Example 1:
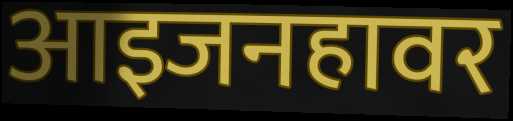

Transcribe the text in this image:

आइजनहावर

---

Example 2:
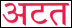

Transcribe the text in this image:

अटत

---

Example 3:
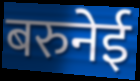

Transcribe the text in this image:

बरुनेई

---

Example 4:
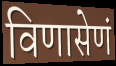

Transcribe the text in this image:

विणासेणं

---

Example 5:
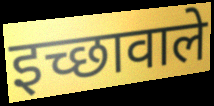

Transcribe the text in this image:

इच्छावाले